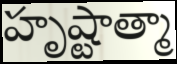
హృష్టాత్మా